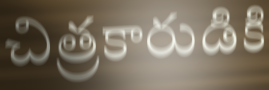
చిత్రకారుడికి